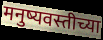
मनुष्यवस्तीच्या